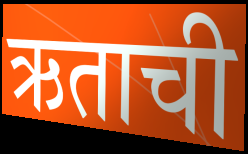
ऋताची